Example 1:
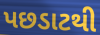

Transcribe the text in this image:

પછડાટથી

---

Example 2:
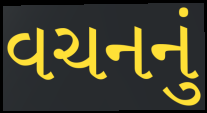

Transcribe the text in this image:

વચનનું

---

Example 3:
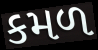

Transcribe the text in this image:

કમળ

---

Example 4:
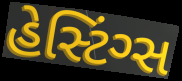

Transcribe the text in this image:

હેસ્ટિંગ્સ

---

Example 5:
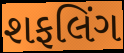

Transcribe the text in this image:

શફલિંગ